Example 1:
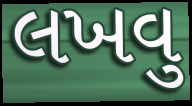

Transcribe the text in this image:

લખવુ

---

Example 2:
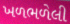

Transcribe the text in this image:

ખળભળેલી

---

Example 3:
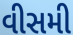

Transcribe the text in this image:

વીસમી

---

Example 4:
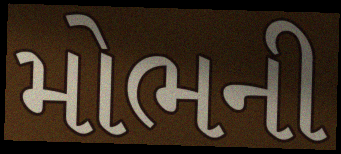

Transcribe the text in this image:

મોભની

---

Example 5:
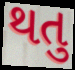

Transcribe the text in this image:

થતુ